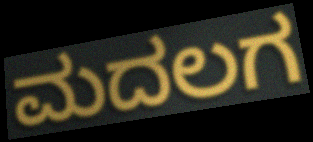
ಮದಲಗ